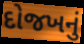
દોજખનું